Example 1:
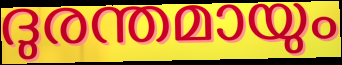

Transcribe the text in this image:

ദുരന്തമായും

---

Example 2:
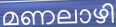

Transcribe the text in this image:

മണലാഴി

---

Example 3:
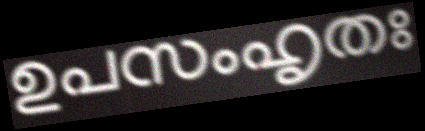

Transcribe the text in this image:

ഉപസംഹൃതഃ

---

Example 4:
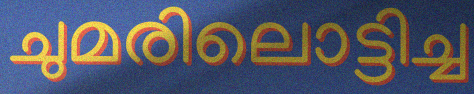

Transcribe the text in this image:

ചുമരിലൊട്ടിച്ച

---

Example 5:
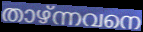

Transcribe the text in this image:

താഴ്ന്നവനെ